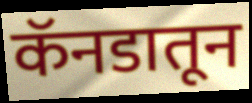
कॅनडातून